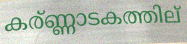
കര്ണ്ണാടകത്തില്